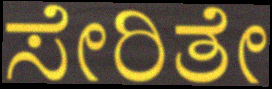
ಸೇರಿತೇ